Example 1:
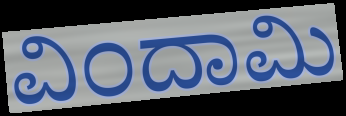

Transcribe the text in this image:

ವಿಂದಾಮಿ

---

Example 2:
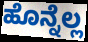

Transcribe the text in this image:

ಹೊನ್ನೆಲ್ಲ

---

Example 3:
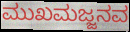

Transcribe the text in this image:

ಮುಖಮಜ್ಜನವ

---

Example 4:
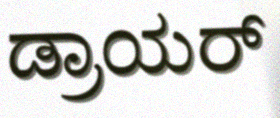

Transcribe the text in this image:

ಡ್ರಾಯರ್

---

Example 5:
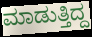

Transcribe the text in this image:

ಮಾಡುತ್ತಿದ್ದ